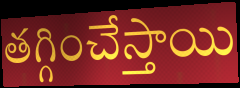
తగ్గించేస్తాయి